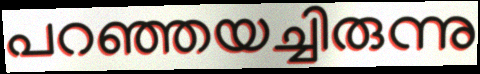
പറഞ്ഞയച്ചിരുന്നു